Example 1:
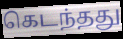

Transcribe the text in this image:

கெடந்தது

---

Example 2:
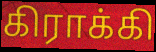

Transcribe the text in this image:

கிராக்கி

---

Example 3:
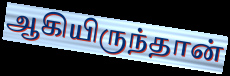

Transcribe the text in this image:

ஆகியிருந்தான்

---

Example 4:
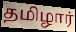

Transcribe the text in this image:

தமிழார்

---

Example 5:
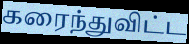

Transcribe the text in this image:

கரைந்துவிட்ட